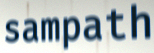
sampath